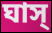
ঘাস্